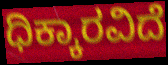
ಧಿಕ್ಕಾರವಿದೆ